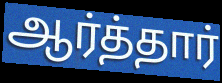
ஆர்த்தார்